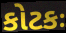
કોટકઃ